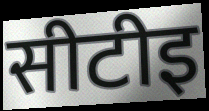
सीटीइ